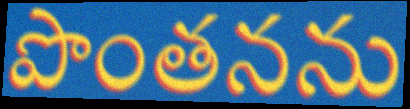
పొంతనను